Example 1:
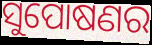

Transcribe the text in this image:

ସୁପୋଷଣର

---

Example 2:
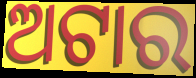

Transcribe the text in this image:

ଅଟାର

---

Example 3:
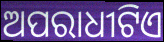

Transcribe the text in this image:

ଅପରାଧୀଟିଏ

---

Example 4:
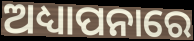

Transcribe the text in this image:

ଅଧ୍ୟାପନାରେ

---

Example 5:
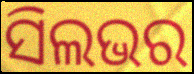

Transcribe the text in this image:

ସିଲଭର